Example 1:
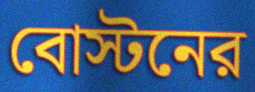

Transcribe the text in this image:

বোস্টনের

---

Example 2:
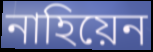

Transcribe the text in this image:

নাহিয়েন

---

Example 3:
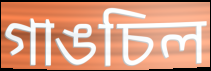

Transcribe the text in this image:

গাঙচিল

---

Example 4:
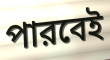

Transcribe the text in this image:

পারবেই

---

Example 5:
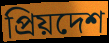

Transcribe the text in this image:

প্রিয়দেশ